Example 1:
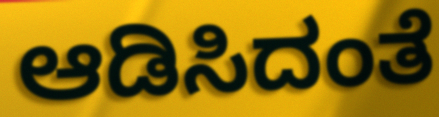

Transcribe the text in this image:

ಆಡಿಸಿದಂತೆ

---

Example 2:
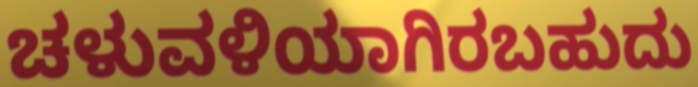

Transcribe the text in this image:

ಚಳುವಳಿಯಾಗಿರಬಹುದು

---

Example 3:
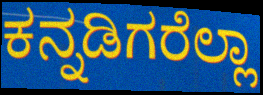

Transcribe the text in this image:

ಕನ್ನಡಿಗರೆಲ್ಲಾ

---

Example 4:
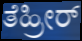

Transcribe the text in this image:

ತೆಹ್ರೀರ್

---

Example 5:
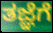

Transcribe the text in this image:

ತಜ್ಞೆಗೆ